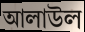
আলাউল